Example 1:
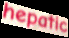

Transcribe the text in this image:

hepatic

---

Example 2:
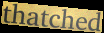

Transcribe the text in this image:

thatched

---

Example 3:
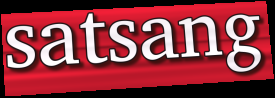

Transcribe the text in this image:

satsang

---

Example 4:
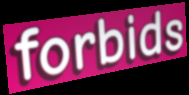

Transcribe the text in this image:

forbids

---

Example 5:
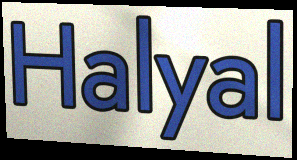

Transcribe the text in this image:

Halyal